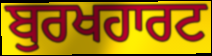
ਬੁਰਖਹਾਰਟ